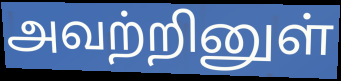
அவற்றினுள்